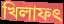
খিলাফৎ